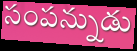
సంపన్నుడు